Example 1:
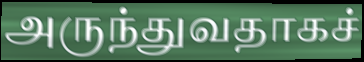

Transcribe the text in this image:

அருந்துவதாகச்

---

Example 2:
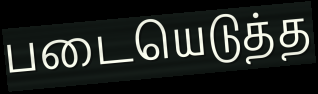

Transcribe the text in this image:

படையெடுத்த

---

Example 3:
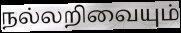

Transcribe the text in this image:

நல்லறிவையும்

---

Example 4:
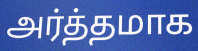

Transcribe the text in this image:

அர்த்தமாக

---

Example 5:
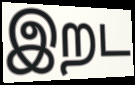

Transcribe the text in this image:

இறட